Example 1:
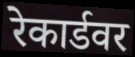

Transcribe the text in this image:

रेकार्डवर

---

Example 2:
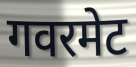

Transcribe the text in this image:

गवरमेट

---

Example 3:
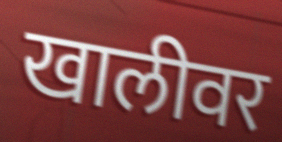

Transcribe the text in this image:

खालीवर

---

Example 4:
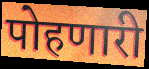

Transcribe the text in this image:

पोहणारी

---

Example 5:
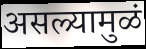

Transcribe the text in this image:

असल्यामुळं